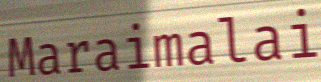
Maraimalai